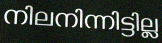
നിലനിന്നിട്ടില്ല